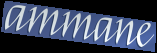
ammane